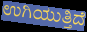
ಉಗಿಯುತ್ತಿದೆ